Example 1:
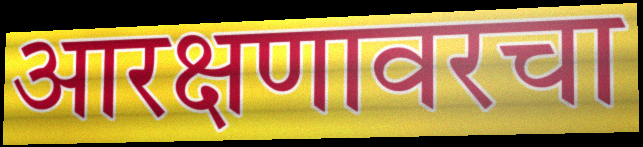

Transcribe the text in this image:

आरक्षणावरचा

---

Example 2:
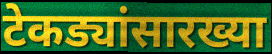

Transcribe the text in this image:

टेकड्यांसारख्या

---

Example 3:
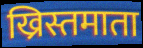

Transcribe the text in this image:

ख्रिस्तमाता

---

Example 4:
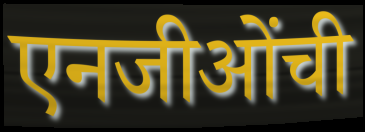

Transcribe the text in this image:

एनजीओंची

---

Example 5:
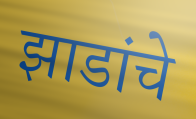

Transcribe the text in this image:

झाडांचे